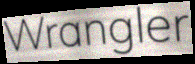
Wrangler